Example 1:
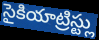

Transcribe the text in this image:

సైకియాట్రిస్ట్లు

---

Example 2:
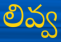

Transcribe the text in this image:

లివ్వ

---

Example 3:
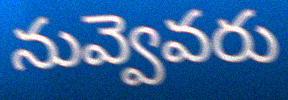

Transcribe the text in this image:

నువ్వెవరు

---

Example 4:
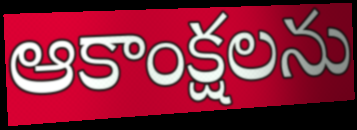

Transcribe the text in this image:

ఆకాంక్షలను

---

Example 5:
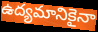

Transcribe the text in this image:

ఉద్యమానికైనా